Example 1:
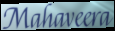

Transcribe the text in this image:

Mahaveera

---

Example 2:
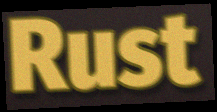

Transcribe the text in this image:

Rust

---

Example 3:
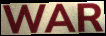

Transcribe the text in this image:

WAR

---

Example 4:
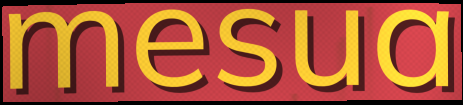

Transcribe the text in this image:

mesua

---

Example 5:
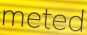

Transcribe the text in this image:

meted